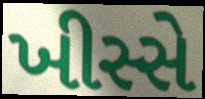
ખીસ્સે